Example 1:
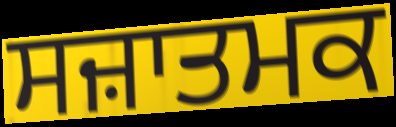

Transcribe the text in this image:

ਸਜ਼ਾਤਮਕ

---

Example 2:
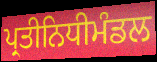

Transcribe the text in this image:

ਪ੍ਰਤੀਨਿਧੀਮੰਡਲ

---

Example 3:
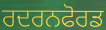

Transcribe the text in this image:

ਰਦਰਨਫੋਰਡ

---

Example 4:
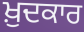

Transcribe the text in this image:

ਖ਼ੁਦਕਾਰ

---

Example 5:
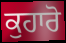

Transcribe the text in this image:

ਕੁਹਾਰੋ